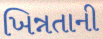
ખિન્નતાની